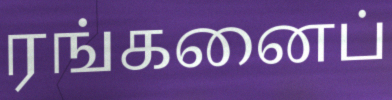
ரங்கனைப்